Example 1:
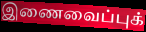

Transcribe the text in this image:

இணைவைப்புக்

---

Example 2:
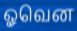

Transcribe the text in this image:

ஓவென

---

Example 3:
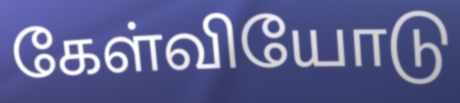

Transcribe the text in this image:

கேள்வியோடு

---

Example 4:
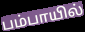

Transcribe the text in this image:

பம்பாயில்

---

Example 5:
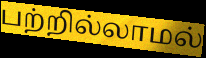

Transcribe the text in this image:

பற்றில்லாமல்